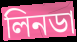
লিনডা